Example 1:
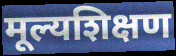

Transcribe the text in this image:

मूल्यशिक्षण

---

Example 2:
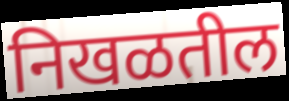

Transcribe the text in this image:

निखळतील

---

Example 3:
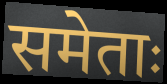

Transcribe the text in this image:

समेताः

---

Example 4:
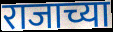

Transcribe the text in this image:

राजाच्या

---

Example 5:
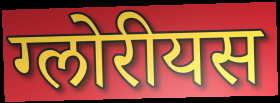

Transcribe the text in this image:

ग्लोरीयस